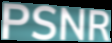
PSNR